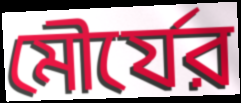
মৌর্যের